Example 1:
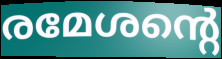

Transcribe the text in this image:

രമേശന്റെ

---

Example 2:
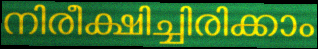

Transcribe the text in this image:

നിരീക്ഷിച്ചിരിക്കാം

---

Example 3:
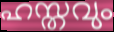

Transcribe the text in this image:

ഹസ്തവും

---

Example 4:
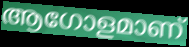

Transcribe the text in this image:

ആഗോളമാണ്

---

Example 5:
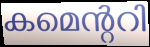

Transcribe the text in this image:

കമെന്ററി